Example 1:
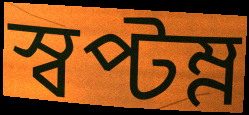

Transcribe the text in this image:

স্বপ্টম্ন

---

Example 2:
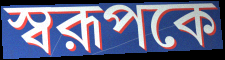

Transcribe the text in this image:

স্বরূপকে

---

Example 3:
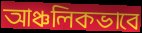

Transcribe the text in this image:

আঞ্চলিকভাবে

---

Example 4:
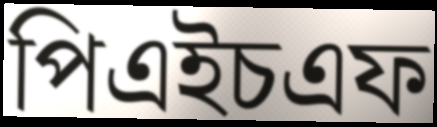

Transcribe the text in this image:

পিএইচএফ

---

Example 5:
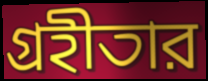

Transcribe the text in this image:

গ্রহীতার